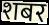
शबर